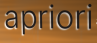
apriori